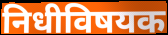
निधीविषयक